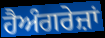
ਹੈਅੰਗਰੇਜ਼ਾਂ